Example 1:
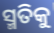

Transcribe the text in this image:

ସ୍ମତିକୁ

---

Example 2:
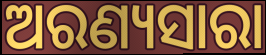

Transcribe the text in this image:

ଅରଣ୍ୟସାରା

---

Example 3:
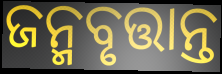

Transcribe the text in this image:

ଜନ୍ମବୃତ୍ତାନ୍ତ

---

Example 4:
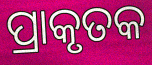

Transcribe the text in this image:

ପ୍ରାକୃତକ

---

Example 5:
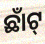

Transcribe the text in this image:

ଛାଁଟ୍